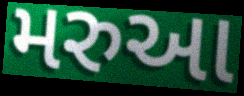
મરુઆ